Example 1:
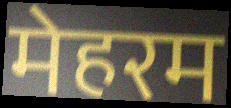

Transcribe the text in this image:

मेहरम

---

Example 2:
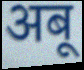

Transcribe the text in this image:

अबू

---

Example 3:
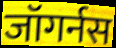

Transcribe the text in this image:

जॉगर्नस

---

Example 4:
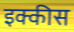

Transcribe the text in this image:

इक्कीस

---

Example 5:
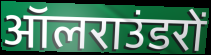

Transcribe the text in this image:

ऑलराउंडरों